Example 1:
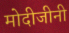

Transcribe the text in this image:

मोदीजीनी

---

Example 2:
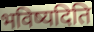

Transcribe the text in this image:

भविष्यदिति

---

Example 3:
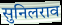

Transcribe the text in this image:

सुनिलराव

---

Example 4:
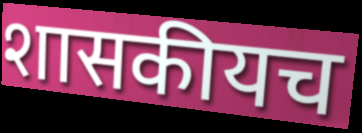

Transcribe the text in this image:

शासकीयच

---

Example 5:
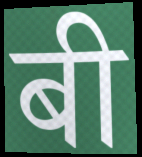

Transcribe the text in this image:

बी